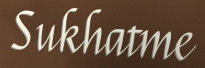
Sukhatme